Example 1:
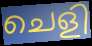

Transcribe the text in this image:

ചെളി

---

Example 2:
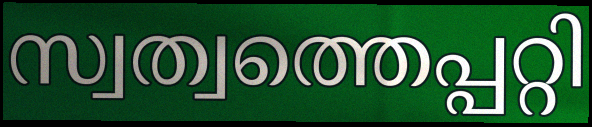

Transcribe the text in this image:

സ്വത്വത്തെപ്പറ്റി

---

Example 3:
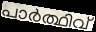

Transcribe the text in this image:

പാർത്ഥിവ്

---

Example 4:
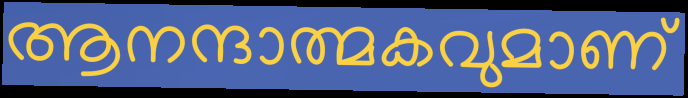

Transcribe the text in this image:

ആനന്ദാത്മകവുമാണ്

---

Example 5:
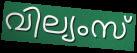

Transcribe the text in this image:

വില്യംസ്